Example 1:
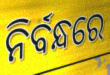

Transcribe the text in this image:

ନିର୍ବନ୍ଧରେ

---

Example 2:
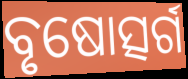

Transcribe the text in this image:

ବୃଷୋତ୍ସର୍ଗ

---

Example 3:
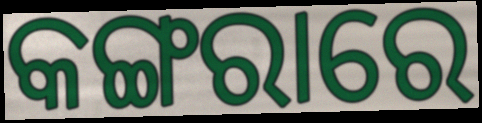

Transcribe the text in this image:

କଙ୍ଗରାରେ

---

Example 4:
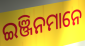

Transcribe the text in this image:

ଇଞ୍ଜିନମାନେ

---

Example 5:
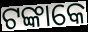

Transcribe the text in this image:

ଟଙ୍କାକେ